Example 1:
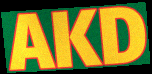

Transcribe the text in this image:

AKD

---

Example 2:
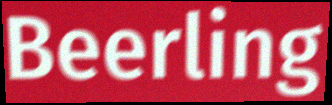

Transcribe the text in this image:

Beerling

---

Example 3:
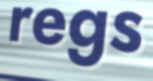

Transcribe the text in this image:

regs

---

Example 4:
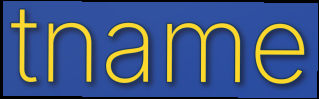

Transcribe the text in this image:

tname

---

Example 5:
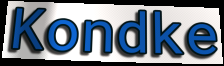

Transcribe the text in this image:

Kondke